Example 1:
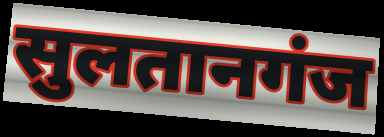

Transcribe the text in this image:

सुलतानगंज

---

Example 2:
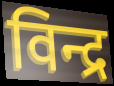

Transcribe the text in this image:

विन्द्र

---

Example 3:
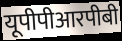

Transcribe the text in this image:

यूपीपीआरपीबी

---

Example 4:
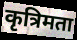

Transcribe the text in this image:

कृत्रिमता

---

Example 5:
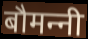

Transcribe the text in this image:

बौमन्नी